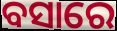
ବସାରେ